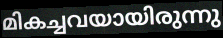
മികച്ചവയായിരുന്നു